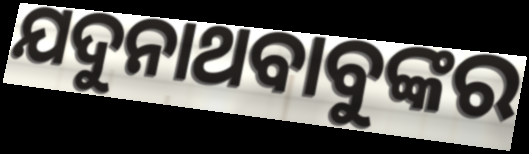
ଯଦୁନାଥବାବୁଙ୍କର